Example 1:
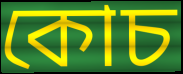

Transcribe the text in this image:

কোচ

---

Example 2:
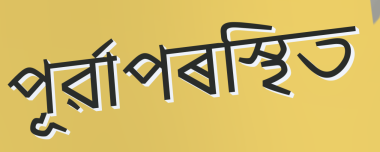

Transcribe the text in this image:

পূৰ্ৱাপৰস্থিত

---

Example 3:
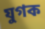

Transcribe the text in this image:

যুগক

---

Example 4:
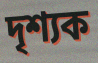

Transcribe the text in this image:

দৃশ্যক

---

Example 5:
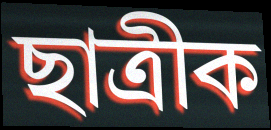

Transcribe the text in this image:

ছাত্ৰীক